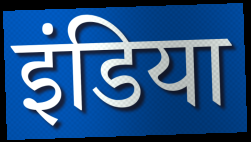
इंडिया